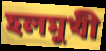
হলমুখী